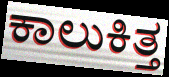
ಕಾಲುಕಿತ್ತ